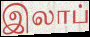
இலாப்